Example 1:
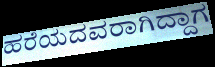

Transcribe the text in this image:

ಹರೆಯದವರಾಗಿದ್ದಾಗ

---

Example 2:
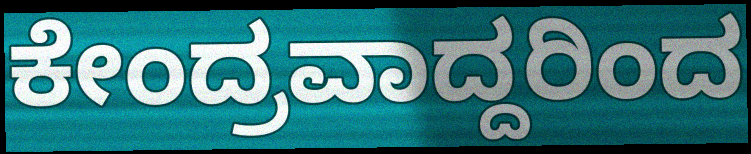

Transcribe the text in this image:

ಕೇಂದ್ರವಾದ್ದರಿಂದ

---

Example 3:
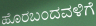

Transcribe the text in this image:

ಹೊರಬಂದವಳಿಗೆ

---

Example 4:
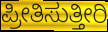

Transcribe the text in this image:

ಪ್ರೀತಿಸುತ್ತೀರಿ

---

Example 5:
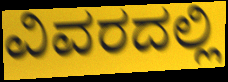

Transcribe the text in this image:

ವಿವರದಲ್ಲಿ